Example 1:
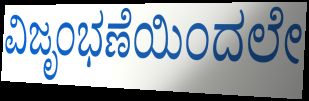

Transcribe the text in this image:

ವಿಜೃಂಭಣೆಯಿಂದಲೇ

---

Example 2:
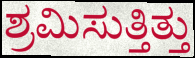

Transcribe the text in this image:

ಶ್ರಮಿಸುತ್ತಿತ್ತು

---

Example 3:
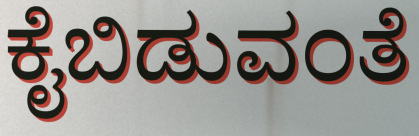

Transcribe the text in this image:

ಕೈಬಿಡುವಂತೆ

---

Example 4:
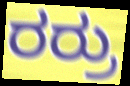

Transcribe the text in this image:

ರರ್ರು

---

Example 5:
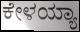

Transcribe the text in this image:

ಕೇಳಯ್ಯಾ